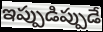
ఇప్పుడిప్పుడే